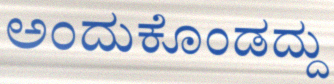
ಅಂದುಕೊಂಡದ್ದು